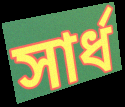
সার্ধ